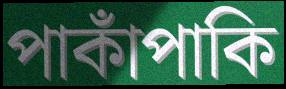
পাকাঁপাকি